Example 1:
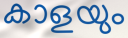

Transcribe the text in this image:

കാളയും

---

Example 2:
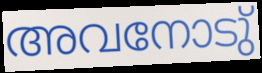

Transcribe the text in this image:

അവനോടു്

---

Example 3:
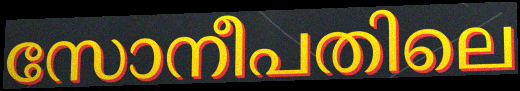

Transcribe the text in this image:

സോനീപതിലെ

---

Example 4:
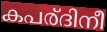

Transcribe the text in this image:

കപര്ദിനീ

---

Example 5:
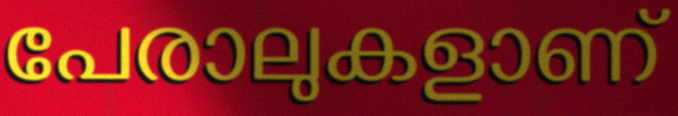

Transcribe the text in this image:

പേരാലുകളാണ്